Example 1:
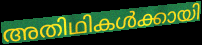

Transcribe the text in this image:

അതിഥികൾക്കായി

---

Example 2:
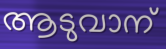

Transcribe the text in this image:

ആടുവാന്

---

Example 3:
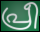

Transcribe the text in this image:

പ്രീ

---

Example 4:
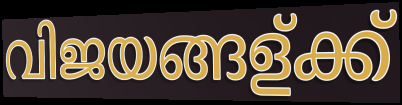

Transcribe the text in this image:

വിജയങ്ങള്ക്ക്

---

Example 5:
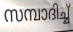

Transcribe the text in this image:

സമ്പാദിച്ച്